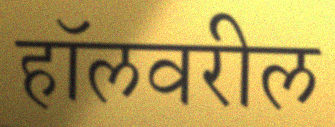
हॉलवरील